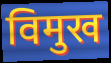
विमुख